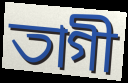
তাগী